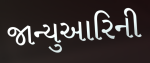
જાન્યુઆરિની